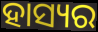
ହାସ୍ୟର